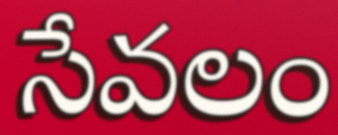
సేవలం